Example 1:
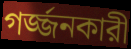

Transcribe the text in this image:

গর্জ্জনকারী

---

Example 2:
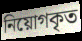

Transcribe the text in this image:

নিয়োগকৃত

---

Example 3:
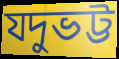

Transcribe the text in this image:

যদুভট্ট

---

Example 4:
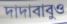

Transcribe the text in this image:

দাদাবাবুও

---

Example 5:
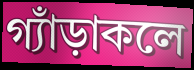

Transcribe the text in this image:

গ্যাঁড়াকলে